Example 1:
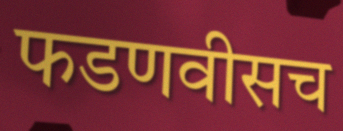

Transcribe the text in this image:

फडणवीसच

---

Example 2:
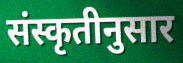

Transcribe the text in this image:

संस्कृतीनुसार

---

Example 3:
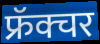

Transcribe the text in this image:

फ्रॅक्चर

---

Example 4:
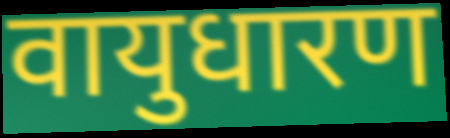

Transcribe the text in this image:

वायुधारण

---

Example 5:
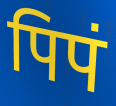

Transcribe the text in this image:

पिपं